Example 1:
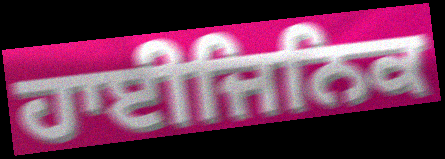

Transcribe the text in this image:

ਹਾਈਜਿਨਿਕ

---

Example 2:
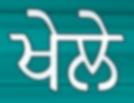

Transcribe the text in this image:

ਖੇਲੇ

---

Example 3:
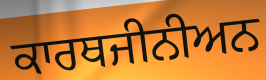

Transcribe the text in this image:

ਕਾਰਥਜੀਨੀਅਨ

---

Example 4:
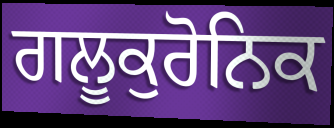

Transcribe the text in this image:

ਗਲੂਕੁਰੋਨਿਕ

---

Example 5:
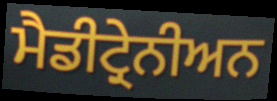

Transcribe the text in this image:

ਮੈਡੀਟ੍ਰੇਨੀਅਨ